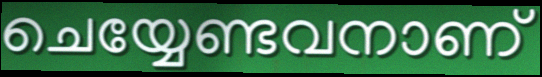
ചെയ്യേണ്ടവനാണ്